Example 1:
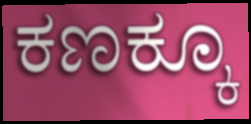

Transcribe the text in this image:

ಕಣಕ್ಕೂ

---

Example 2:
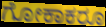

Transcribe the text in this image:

ಗೋಕಾಕರೂ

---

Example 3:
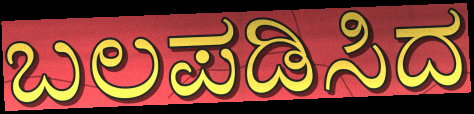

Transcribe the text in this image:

ಬಲಪಡಿಸಿದ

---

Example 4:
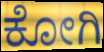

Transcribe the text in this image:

ಕೋಗಿ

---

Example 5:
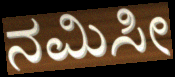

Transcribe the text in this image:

ನಮಿಸೀ